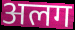
अलग